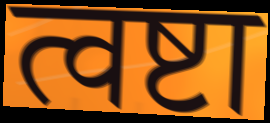
त्वष्टा